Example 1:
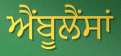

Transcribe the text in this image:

ਐੰਬੂਲੈਂਸਾਂ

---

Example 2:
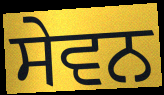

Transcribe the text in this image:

ਸੇਵਨ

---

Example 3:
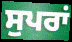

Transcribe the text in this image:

ਸੁਪਰਾਂ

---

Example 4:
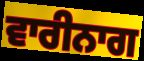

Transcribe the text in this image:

ਵਾਰੀਨਾਗ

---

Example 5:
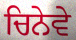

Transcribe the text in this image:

ਚਿਨੇਵੇ